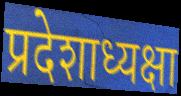
प्रदेशाध्यक्षा